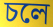
চলে